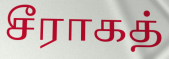
சீராகத்